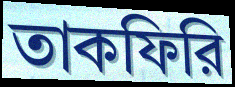
তাকফিরি